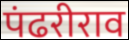
पंढरीराव